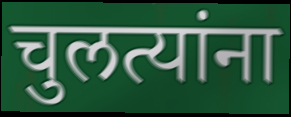
चुलत्यांना